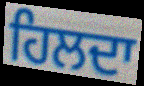
ਹਿਲਦਾ